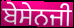
ਬੇਸੇਨਜੀ